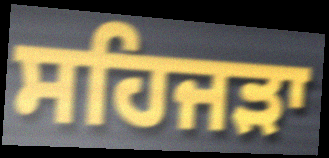
ਸਹਿਜੜਾ